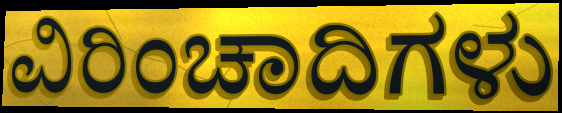
ವಿರಿಂಚಾದಿಗಳು